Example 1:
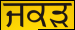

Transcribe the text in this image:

ਜਕੜ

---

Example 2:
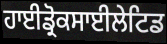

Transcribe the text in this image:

ਹਾਈਡ੍ਰੋਕਸਾਈਲੇਟਿਡ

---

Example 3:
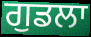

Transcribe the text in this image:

ਗੁਡਲਾ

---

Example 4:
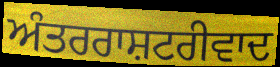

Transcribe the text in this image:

ਅੰਤਰਰਾਸ਼ਟਰੀਵਾਦ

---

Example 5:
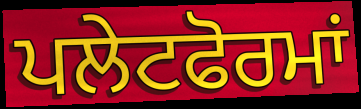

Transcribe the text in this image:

ਪਲੇਟਫੋਰਮਾਂ